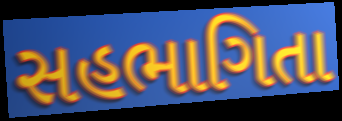
સહભાગિતા